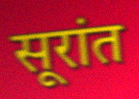
सूरांत